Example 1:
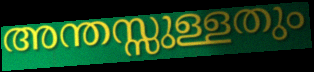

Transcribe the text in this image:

അന്തസ്സുള്ളതും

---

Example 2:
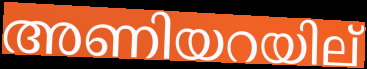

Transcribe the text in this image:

അണിയറയില്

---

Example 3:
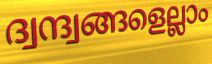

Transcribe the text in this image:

ദ്വന്ദ്വങ്ങളെല്ലാം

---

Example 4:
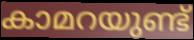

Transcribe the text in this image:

കാമറയുണ്ട്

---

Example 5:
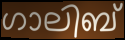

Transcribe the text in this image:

ഗാലിബ്